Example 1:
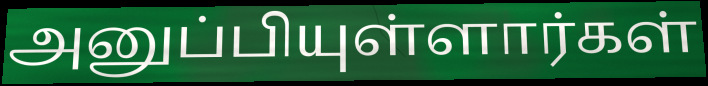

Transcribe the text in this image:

அனுப்பியுள்ளார்கள்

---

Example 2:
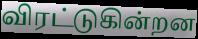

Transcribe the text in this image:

விரட்டுகின்றன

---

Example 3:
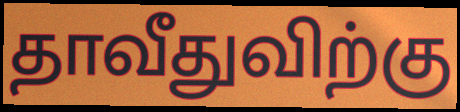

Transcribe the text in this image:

தாவீதுவிற்கு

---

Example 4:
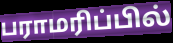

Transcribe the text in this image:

பராமரிப்பில்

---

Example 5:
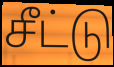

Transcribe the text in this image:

சீட்டு